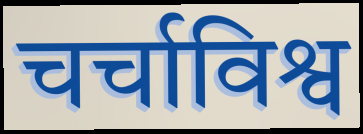
चर्चाविश्व